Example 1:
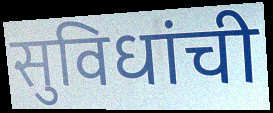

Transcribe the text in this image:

सुविधांची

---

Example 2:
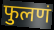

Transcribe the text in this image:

फुलणं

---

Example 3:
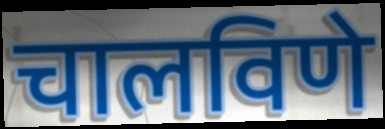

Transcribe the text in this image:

चालविणे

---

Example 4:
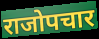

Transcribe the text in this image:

राजोपचार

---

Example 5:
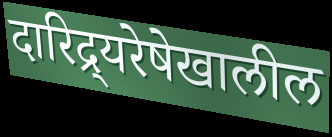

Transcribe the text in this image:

दारिद्र्यरेषेखालील